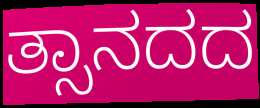
ತ್ಸಾನದದ